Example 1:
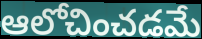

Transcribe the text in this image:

ఆలోచించడమే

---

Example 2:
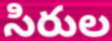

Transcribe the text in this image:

సిరుల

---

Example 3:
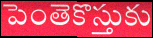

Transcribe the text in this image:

పెంతెకొస్తుకు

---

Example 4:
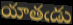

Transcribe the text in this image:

యాతఁడు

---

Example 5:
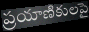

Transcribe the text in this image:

ప్రయాణికులపై